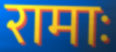
रामाः